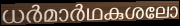
ധർമാർഥകുശലോ